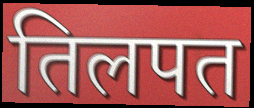
तिलपत